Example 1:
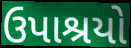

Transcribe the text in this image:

ઉપાશ્રયો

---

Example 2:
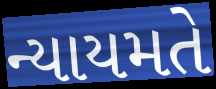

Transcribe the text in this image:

ન્યાયમતે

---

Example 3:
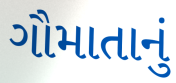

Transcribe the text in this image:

ગૌમાતાનું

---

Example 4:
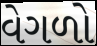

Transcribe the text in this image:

વેગળો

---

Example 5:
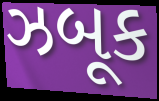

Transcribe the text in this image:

ઝબૂક